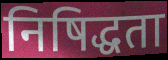
निषिद्धता